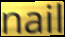
nail